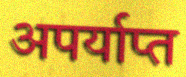
अपर्याप्त